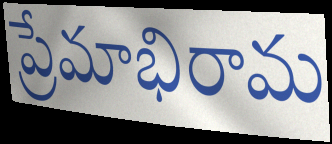
ప్రేమాభిరామ